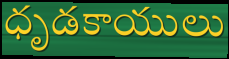
ధృడకాయులు